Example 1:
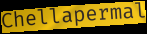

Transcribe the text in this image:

Chellapermal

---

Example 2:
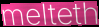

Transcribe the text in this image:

melteth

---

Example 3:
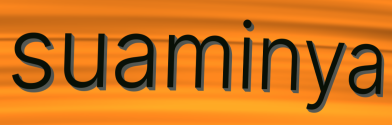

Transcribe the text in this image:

suaminya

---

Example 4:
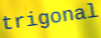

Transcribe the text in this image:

trigonal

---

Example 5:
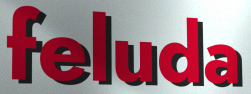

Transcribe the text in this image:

feluda